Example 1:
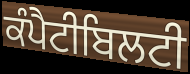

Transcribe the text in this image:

ਕੰਪੈਟੀਬਿਲਟੀ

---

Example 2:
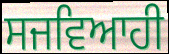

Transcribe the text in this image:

ਸਜਵਿਆਹੀ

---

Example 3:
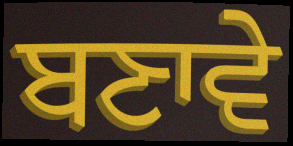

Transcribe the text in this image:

ਬਣਾਵੇ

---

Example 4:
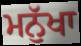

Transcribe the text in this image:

ਮਨੁੱਖਾ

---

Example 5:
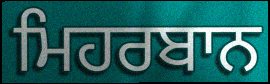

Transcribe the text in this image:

ਮਿਹਰਬਾਨ